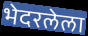
भेदरलेला